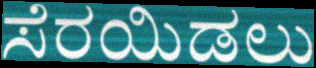
ಸೆರಯಿಡಲು